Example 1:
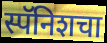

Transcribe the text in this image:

स्पॅनिशचा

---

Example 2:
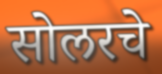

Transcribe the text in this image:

सोलरचे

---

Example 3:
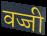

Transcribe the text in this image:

वज्जी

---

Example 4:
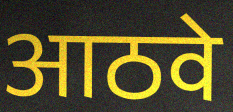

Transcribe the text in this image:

आठवे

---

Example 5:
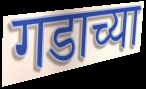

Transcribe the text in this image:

गडाच्या